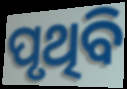
ପୃଥିବି